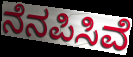
ನೆನಪಿಸಿವೆ